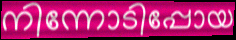
നിന്നോടിപ്പോയ